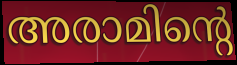
അരാമിന്റെ